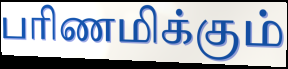
பரிணமிக்கும்